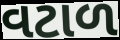
વટાળ